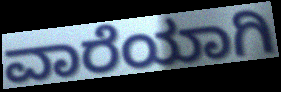
ವಾರೆಯಾಗಿ